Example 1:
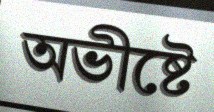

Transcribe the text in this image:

অভীষ্টে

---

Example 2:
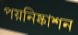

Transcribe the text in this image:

পয়নিষ্কাশন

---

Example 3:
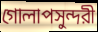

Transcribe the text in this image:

গোলাপসুন্দরী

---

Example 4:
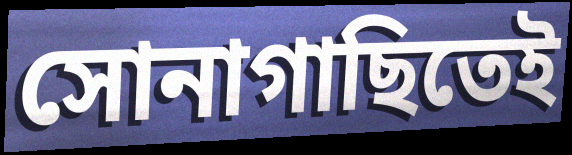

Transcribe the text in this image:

সোনাগাছিতেই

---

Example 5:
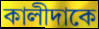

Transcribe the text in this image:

কালীদাকে